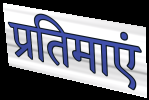
प्रतिमाएं